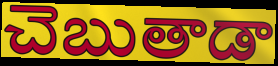
చెబుతాడా